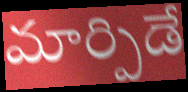
మార్పిడే